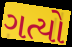
ગત્યો